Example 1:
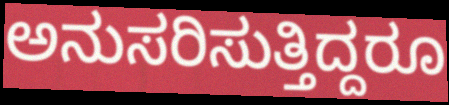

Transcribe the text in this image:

ಅನುಸರಿಸುತ್ತಿದ್ದರೂ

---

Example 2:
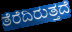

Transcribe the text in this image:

ತೆರೆದಿರುತ್ತದೆ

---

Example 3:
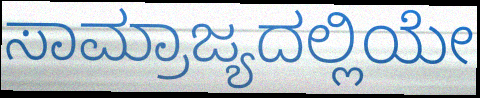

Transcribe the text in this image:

ಸಾಮ್ರಾಜ್ಯದಲ್ಲಿಯೇ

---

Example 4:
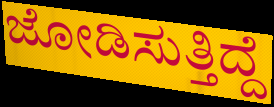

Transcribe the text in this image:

ಜೋಡಿಸುತ್ತಿದ್ದೆ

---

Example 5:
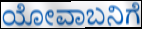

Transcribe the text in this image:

ಯೋವಾಬನಿಗೆ